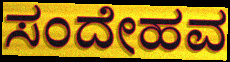
ಸಂದೇಹವ